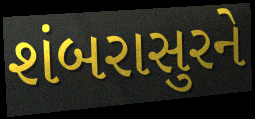
શંબરાસુરને